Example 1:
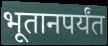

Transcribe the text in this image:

भूतानपर्यंत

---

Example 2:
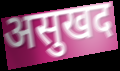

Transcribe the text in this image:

असुखद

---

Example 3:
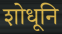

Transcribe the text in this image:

शोधूनि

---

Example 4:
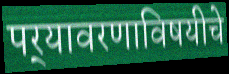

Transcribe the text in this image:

पर्यावरणाविषयीचे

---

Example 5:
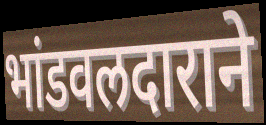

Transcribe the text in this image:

भांडवलदाराने